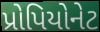
પ્રોપિયોનેટ